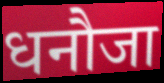
धनौजा